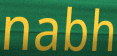
nabh